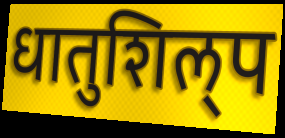
धातुशिल्प